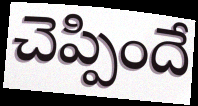
చెప్పిందే